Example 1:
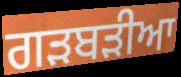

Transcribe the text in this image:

ਗੜਬੜੀਆ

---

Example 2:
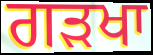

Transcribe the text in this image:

ਗੜਖਾ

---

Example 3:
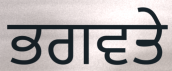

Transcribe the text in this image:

ਭਗਵਤੇ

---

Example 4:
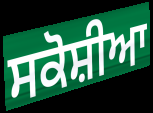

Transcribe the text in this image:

ਸਕੋਸ਼ੀਆ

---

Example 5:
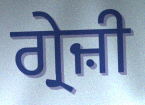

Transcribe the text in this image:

ਗ੍ਰੇਜ਼ੀ